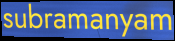
subramanyam